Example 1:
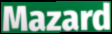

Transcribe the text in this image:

Mazard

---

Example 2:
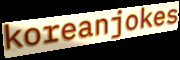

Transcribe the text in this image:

koreanjokes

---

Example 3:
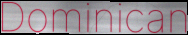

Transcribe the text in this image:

Dominican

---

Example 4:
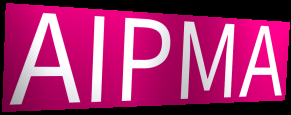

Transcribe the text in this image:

AIPMA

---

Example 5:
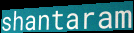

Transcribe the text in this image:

shantaram